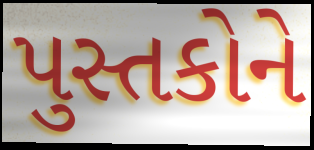
પુસ્તકોને